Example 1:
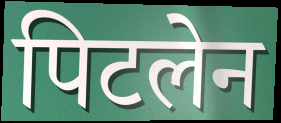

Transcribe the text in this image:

पिटलेन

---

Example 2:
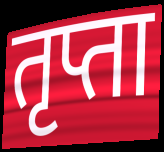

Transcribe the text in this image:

तृप्ता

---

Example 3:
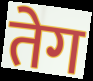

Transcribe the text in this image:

तेग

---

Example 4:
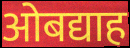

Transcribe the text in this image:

ओबद्याह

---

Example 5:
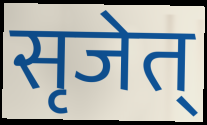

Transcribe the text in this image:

सृजेत्